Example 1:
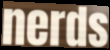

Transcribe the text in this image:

nerds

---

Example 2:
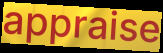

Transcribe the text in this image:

appraise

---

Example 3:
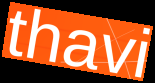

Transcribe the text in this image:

thavi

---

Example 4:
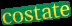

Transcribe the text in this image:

costate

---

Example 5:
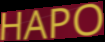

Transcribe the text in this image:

HAPO